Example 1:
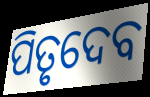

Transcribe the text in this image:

ପିତୃଦେବ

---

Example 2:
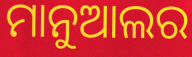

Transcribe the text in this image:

ମାନୁଆଲର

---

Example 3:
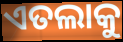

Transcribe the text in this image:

ଏତଲାକୁ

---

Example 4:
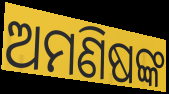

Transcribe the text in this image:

ଅମଣିଷଙ୍କ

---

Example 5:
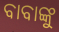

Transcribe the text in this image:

ବାବାଙ୍କୁ